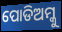
ପୋଡିଅମ୍କୁ